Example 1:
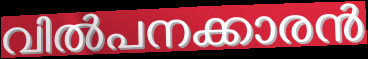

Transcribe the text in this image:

വിൽപനക്കാരൻ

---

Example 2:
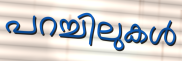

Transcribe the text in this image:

പറച്ചിലുകൾ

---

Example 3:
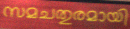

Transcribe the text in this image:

സമചതുരമായി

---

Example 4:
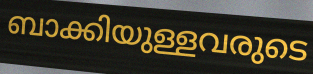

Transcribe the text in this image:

ബാക്കിയുള്ളവരുടെ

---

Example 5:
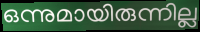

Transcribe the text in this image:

ഒന്നുമായിരുന്നില്ല